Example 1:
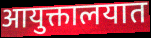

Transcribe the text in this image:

आयुक्तालयात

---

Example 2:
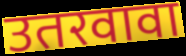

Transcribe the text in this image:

उतरवावा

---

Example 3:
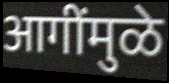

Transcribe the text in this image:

आगींमुळे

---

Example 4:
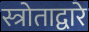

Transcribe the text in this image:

स्त्रोताद्वारे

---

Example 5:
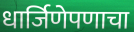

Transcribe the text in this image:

धार्जिणेपणाचा